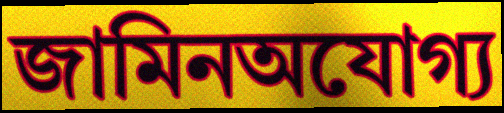
জামিনঅযোগ্য